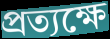
প্রত্যক্ষে